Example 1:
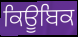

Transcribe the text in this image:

ਕਿਊਬਿਕ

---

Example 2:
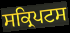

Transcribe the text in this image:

ਸਕ੍ਰਿਪਟਸ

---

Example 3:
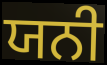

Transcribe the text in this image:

ਯਨੀ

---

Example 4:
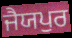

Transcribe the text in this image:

ਜੈਯਪੁਰ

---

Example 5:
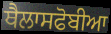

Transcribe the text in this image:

ਥੈਲਾਸਫੋਬੀਆ